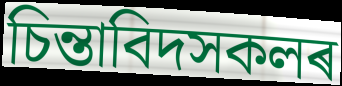
চিন্তাবিদসকলৰ